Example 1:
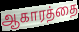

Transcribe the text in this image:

ஆகாரத்தை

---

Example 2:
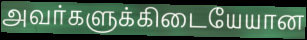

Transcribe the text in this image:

அவர்களுக்கிடையேயான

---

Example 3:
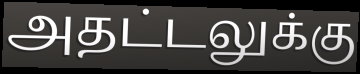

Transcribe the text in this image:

அதட்டலுக்கு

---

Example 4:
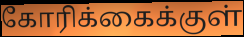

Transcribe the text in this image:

கோரிக்கைக்குள்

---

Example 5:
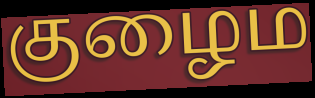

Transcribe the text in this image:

குழைம